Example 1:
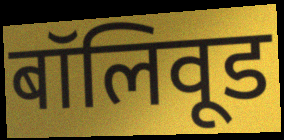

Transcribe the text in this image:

बॉलिवूड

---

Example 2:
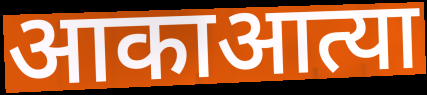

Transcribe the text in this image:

आकाआत्या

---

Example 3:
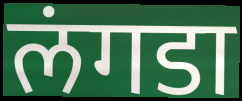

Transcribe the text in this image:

लंगडा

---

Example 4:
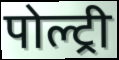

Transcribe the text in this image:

पोल्ट्री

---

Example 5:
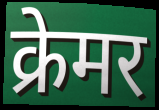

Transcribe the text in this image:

क्रेमर